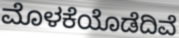
ಮೊಳಕೆಯೊಡೆದಿವೆ